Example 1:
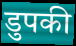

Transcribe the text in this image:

डुपकी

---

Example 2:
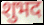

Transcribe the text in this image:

शुभद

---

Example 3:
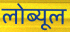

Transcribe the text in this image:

लोब्यूल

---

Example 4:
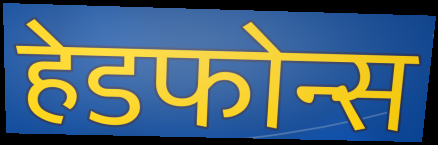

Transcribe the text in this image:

हेडफोन्स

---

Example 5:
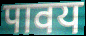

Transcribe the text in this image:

पावय